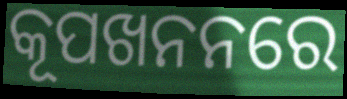
କୂପଖନନରେ